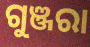
ଗୁଞ୍ଜରା